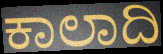
ಕಾಲಾದಿ